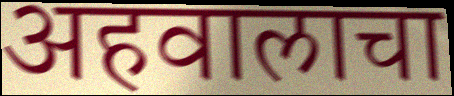
अहवालाचा